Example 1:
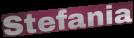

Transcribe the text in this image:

Stefania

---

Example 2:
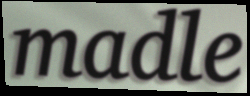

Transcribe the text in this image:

madle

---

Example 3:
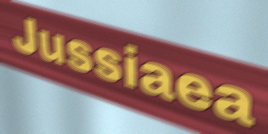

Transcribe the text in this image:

Jussiaea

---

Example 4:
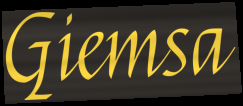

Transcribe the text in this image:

Giemsa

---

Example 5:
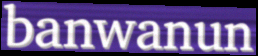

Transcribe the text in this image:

banwanun